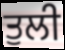
ਤੁਲੀ